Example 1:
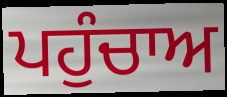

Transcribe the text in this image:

ਪਹੁੰਚਾਅ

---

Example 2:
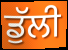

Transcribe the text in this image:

ਡੁੱਲੀ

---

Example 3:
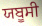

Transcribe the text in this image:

ਯਬੂਸੀ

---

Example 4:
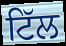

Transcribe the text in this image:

ਟਿੱਲ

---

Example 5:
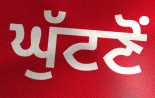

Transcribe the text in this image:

ਘੁੱਟਣੋਂ